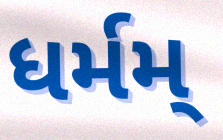
ધર્મમ્